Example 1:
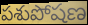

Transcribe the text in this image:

పశుపోషణ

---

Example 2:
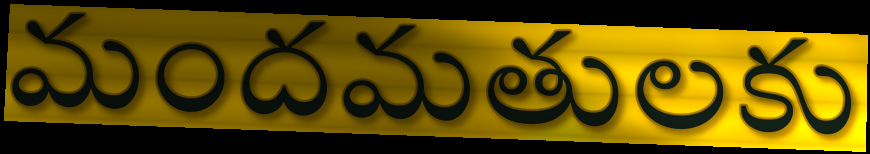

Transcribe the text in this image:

మందమతులకు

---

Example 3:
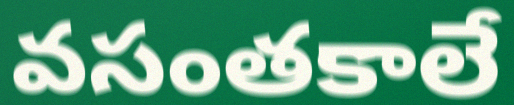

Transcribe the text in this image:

వసంతకాలే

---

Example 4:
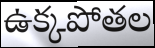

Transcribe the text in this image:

ఉక్కపోతల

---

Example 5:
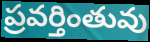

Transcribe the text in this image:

ప్రవర్తింతువు